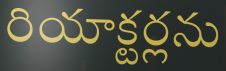
రియాక్టర్లను